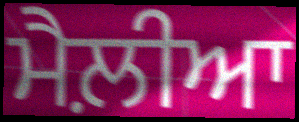
ਮੈਲ਼ੀਆ